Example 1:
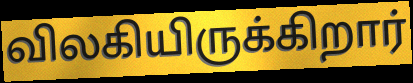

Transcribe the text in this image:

விலகியிருக்கிறார்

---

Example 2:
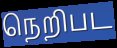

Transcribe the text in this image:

நெறிபட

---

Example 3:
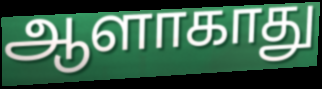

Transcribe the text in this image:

ஆளாகாது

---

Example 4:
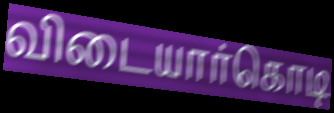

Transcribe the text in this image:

விடையார்கொடி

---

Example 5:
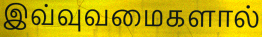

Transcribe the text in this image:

இவ்வுவமைகளால்